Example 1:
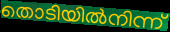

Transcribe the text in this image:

തൊടിയിൽനിന്ന്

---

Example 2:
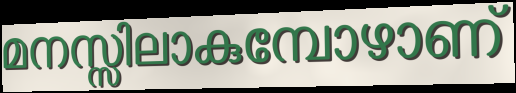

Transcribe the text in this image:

മനസ്സിലാകുമ്പോഴാണ്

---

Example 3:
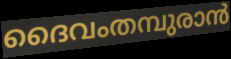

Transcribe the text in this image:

ദൈവംതമ്പുരാൻ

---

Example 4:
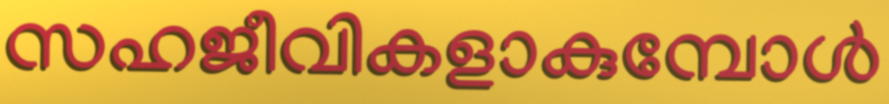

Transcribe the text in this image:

സഹജീവികളാകുമ്പോൾ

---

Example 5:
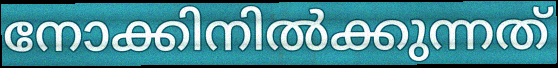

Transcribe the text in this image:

നോക്കിനിൽക്കുന്നത്